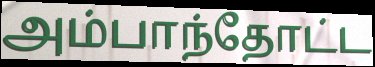
அம்பாந்தோட்ட